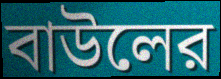
বাউলের